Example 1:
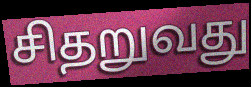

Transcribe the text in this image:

சிதறுவது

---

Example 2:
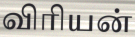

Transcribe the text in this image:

விரியன்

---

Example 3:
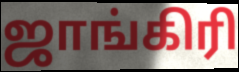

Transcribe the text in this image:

ஜாங்கிரி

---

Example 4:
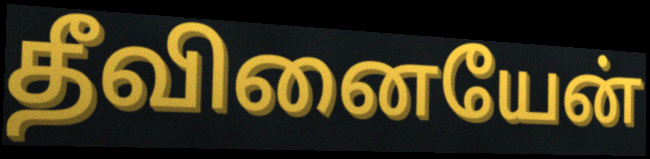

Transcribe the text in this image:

தீவினையேன்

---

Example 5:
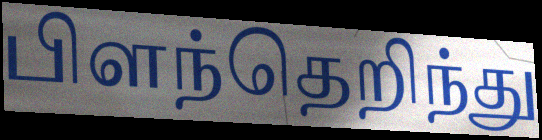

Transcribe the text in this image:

பிளந்தெறிந்து